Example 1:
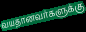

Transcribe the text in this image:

வயதானவர்களுக்கு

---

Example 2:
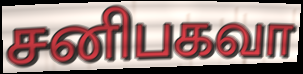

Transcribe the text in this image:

சனிபகவா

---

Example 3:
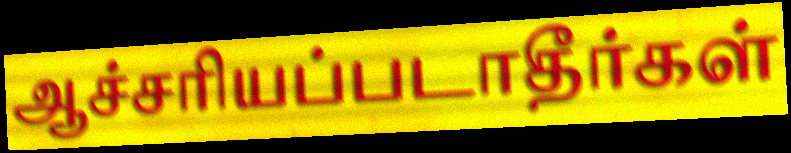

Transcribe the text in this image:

ஆச்சரியப்படாதீர்கள்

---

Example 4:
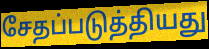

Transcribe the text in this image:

சேதப்படுத்தியது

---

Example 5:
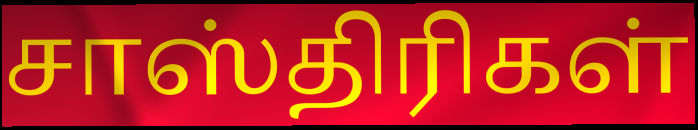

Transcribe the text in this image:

சாஸ்திரிகள்